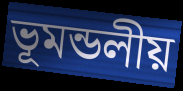
ভূমন্ডলীয়